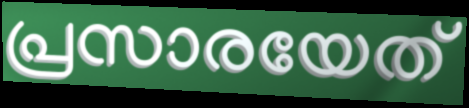
പ്രസാരയേത്